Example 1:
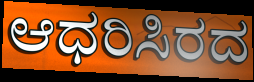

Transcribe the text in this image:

ಆಧರಿಸಿರದ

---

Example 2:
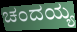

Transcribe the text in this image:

ಚಂದಯ್ಯ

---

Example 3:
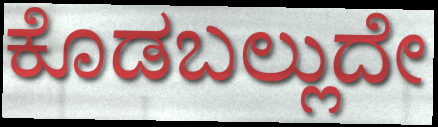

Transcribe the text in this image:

ಕೊಡಬಲ್ಲುದೇ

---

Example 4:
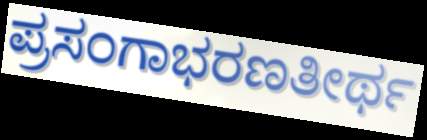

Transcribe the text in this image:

ಪ್ರಸಂಗಾಭರಣತೀರ್ಥ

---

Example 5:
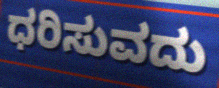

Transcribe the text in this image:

ಧರಿಸುವದು